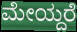
ಮೇಯ್ದರೆ